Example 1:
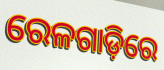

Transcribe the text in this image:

ରେଳଗାଡ଼ିରେ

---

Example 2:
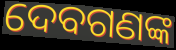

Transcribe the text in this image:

ଦେବଗଣଙ୍କ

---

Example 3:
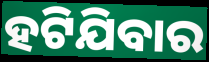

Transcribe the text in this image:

ହଟିଯିବାର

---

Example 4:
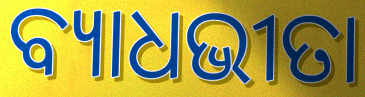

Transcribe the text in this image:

ବ୍ୟାଧଭୀତା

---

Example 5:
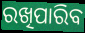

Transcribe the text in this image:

ରଖିପାରିବ